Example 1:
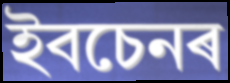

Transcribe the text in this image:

ইবচেনৰ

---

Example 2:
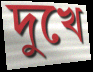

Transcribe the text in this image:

দুখে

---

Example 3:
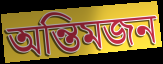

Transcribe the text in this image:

অন্তিমজন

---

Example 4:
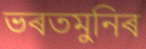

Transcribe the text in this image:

ভৰতমুনিৰ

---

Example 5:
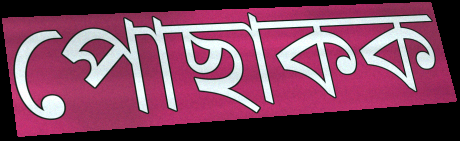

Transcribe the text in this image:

পোছাকক